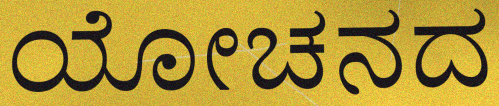
ಯೋಚನದ